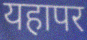
यहापर